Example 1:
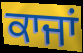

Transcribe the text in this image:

ਕਾਜਾਂ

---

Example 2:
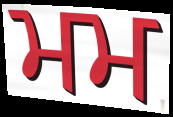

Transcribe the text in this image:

ਮਮ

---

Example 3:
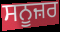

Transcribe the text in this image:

ਸਨੂਜ਼ਰ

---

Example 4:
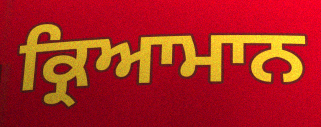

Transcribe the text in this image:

ਕ੍ਰਿਆਮਾਨ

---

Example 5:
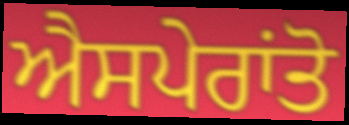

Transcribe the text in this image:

ਐਸਪੇਰਾਂਤੋ